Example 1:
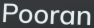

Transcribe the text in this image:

Pooran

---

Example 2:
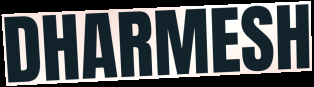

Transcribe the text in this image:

DHARMESH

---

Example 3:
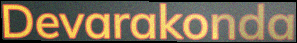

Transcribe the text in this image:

Devarakonda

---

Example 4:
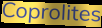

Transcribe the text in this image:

Coprolites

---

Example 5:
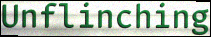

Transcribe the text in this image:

Unflinching